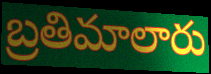
బ్రతిమాలారు